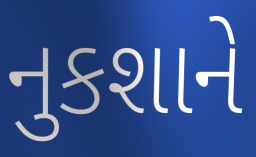
નુકશાને